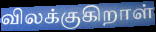
விலக்குகிறாள்